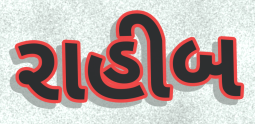
રાહીબ